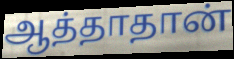
ஆத்தாதான்